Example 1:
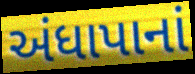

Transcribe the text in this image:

અંધાપાનાં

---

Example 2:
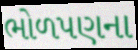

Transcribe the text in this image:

ભોળપણના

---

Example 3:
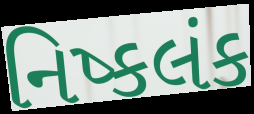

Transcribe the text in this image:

નિષ્કલંક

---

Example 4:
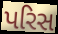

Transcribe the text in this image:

પરિસ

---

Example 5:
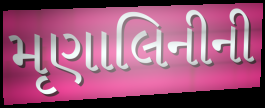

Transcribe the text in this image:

મૃણાલિનીની